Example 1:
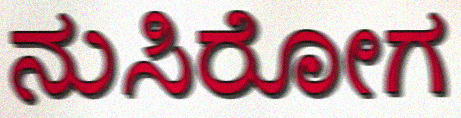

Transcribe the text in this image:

ನುಸಿರೋಗ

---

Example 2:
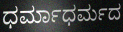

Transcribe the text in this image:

ಧರ್ಮಾಧರ್ಮದ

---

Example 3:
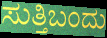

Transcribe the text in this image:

ಸುತ್ತಿಬಂದು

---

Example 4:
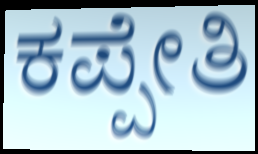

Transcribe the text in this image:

ಕಪ್ಪೇತಿ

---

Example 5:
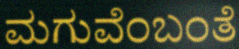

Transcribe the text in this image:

ಮಗುವೆಂಬಂತೆ